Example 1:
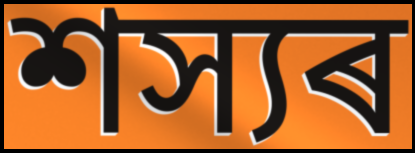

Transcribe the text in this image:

শস্যৰ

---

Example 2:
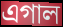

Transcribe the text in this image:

এগাল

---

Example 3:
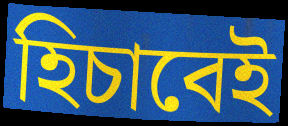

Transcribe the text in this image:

হিচাবেই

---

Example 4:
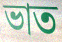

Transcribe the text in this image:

ভাত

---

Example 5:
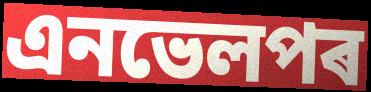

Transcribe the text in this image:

এনভেলপৰ